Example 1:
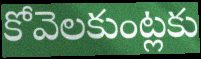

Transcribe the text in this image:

కోవెలకుంట్లకు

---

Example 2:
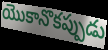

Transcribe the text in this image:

యొకానొకప్పుడు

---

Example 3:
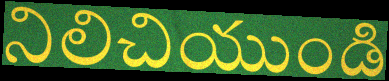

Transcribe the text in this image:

నిలిచియుండి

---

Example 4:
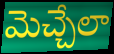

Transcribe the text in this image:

మెచ్చేలా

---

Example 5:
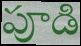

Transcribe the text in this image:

పూడి